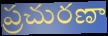
ప్రచురణా